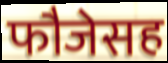
फौजेसह